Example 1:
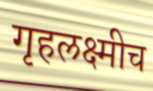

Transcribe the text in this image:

गृहलक्ष्मीच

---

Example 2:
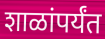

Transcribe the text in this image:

शाळांपर्यंत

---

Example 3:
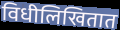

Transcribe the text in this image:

विधीलिखितात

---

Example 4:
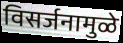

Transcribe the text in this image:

विसर्जनामुळे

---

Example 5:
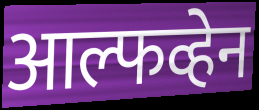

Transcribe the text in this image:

आल्फव्हेन